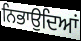
ਨਿਭਾਉਦਿਆਂ